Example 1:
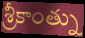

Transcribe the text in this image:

శ్రీకాంత్ను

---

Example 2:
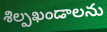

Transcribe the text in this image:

శిల్పఖండాలను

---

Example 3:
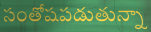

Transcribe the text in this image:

సంతోషపడుతున్నా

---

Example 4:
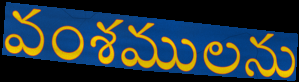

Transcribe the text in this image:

వంశములను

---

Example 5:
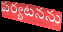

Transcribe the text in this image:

పర్యటనను